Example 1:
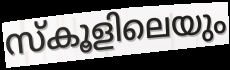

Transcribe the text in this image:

സ്കൂളിലെയും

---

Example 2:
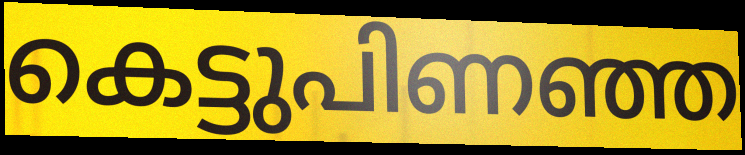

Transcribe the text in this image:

കെട്ടുപിണഞ്ഞ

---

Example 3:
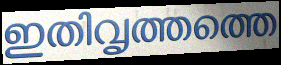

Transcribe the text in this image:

ഇതിവൃത്തത്തെ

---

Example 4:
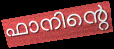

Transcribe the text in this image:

ഫാനിന്റെ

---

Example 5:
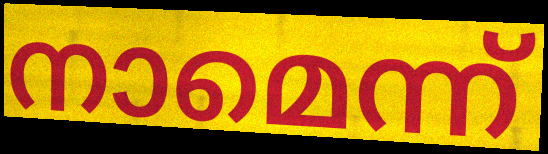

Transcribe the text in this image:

നാമെന്ന്